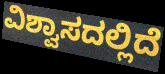
ವಿಶ್ವಾಸದಲ್ಲಿದೆ